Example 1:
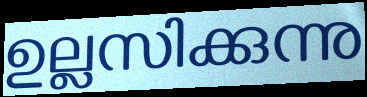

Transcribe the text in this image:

ഉല്ലസിക്കുന്നു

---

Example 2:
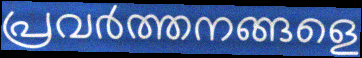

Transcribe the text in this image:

പ്രവർത്തനങ്ങളെ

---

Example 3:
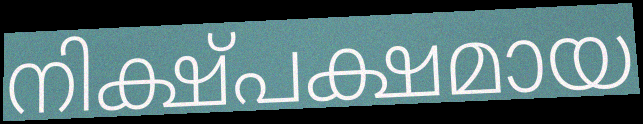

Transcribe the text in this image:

നിക്ഷ്പക്ഷമായ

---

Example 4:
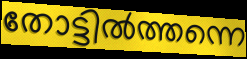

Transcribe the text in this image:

തോട്ടിൽത്തന്നെ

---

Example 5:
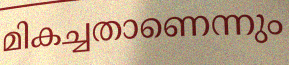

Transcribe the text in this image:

മികച്ചതാണെന്നും